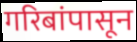
गरिबांपासून